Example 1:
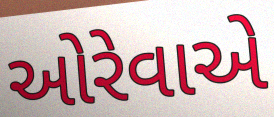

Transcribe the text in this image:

ઓરેવાએ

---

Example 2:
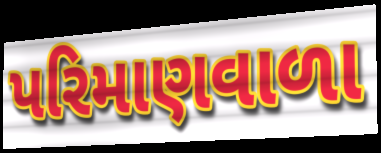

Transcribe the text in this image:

પરિમાણવાળા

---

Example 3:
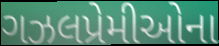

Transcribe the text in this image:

ગઝલપ્રેમીઓના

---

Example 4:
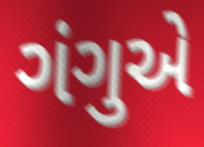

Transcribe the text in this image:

ગંગુએ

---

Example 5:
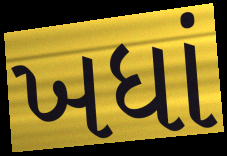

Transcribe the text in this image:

ખધાં